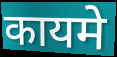
कायमे